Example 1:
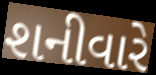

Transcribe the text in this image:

શનીવારે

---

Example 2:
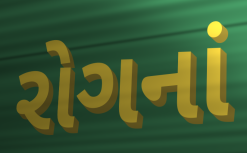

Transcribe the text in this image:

રોગનાં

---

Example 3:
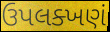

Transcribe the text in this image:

ઉપલક્ખણં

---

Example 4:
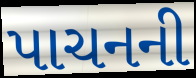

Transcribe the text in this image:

પાચનની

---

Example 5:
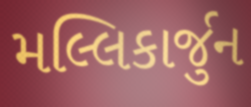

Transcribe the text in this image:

મલ્લિકાર્જુન